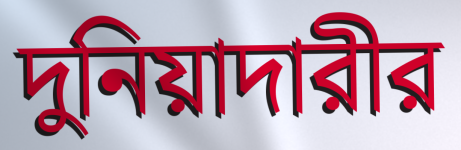
দুনিয়াদারীর